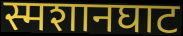
स्मशानघाट